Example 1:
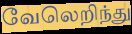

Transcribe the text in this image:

வேலெறிந்து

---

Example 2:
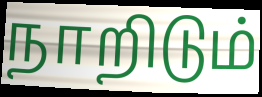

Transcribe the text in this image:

நாறிடும்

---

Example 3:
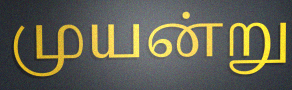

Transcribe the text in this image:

முயன்று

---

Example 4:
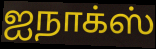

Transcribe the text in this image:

ஐநாக்ஸ்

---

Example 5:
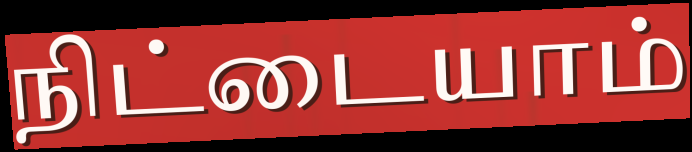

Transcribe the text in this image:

நிட்டையாம்